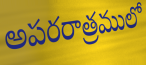
అపరరాత్రములో